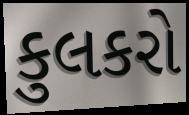
કુલકરો